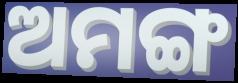
ଅମଙ୍ଗ